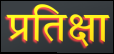
प्रतिक्षा